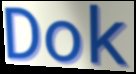
Dok